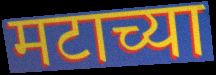
मटाच्या